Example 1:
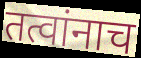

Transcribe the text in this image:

तत्वांनाच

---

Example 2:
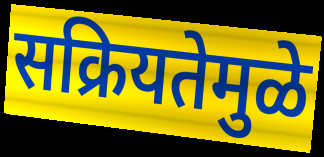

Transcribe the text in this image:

सक्रियतेमुळे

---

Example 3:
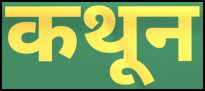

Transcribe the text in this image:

कथून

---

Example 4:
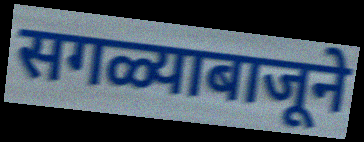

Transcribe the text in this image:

सगळ्याबाजूने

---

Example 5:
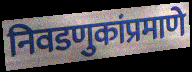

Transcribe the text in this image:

निवडणुकांप्रमाणे